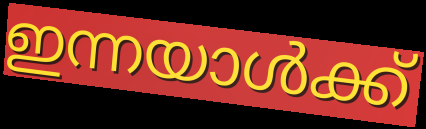
ഇന്നയാൾക്ക്